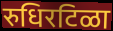
रुधिरटिळा